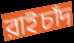
রাইচাঁদ